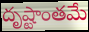
దృష్టాంతమే